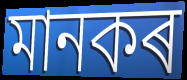
মানকৰ